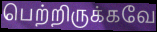
பெற்றிருக்கவே